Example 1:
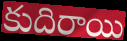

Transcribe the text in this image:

కుదిరాయి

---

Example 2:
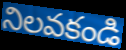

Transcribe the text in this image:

నిలవకండి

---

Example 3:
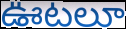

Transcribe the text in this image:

ఊటలూ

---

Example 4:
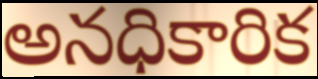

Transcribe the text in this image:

అనధికారిక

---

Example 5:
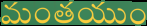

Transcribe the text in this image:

మంతయుం